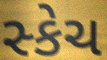
સ્કેચ